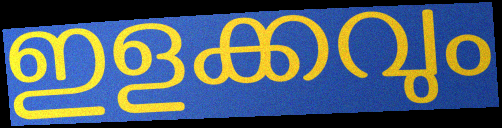
ഇളക്കവും